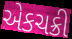
એકચક્રી